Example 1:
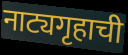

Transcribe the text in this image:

नाट्यगृहाची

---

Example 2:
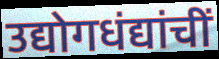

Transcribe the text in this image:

उद्योगधंद्यांचीं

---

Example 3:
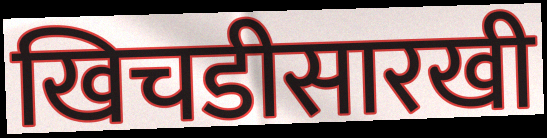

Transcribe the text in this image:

खिचडीसारखी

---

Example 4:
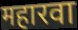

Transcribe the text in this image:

महारवा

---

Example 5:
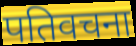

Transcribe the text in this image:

पतिवचना